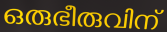
ഒരുഭീരുവിന്